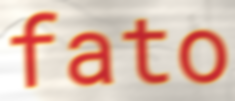
fato